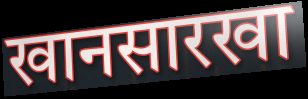
खानसारखा